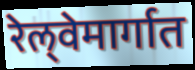
रेल्वेमार्गात